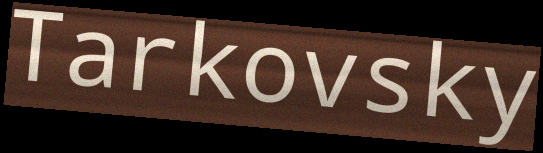
Tarkovsky